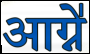
आग्ने॑